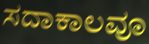
ಸದಾಕಾಲವೂ